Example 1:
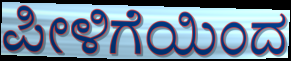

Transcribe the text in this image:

ಪೀಳಿಗೆಯಿಂದ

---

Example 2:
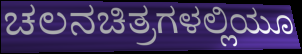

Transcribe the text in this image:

ಚಲನಚಿತ್ರಗಳಲ್ಲಿಯೂ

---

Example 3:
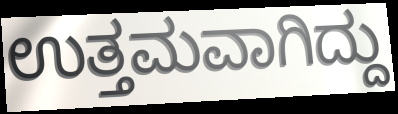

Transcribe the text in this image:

ಉತ್ತಮವಾಗಿದ್ದು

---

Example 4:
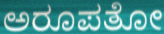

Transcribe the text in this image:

ಅರೂಪತೋ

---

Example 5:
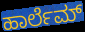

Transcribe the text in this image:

ಹಾರ್ಲೆಮ್